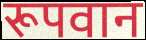
रूपवान